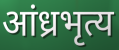
आंध्रभृत्य